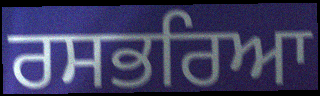
ਰਸਭਰਿਆ